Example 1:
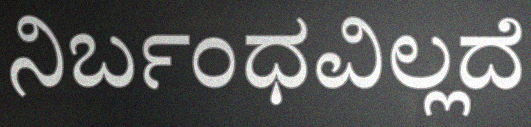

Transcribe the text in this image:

ನಿರ್ಬಂಧವಿಲ್ಲದೆ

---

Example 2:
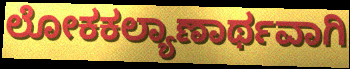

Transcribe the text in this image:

ಲೋಕಕಲ್ಯಾಣಾರ್ಥವಾಗಿ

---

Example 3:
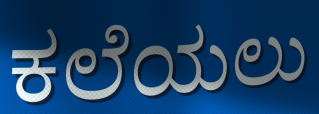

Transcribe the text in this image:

ಕಲೆಯಲು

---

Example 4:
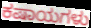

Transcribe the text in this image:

ಕಷಾಯಗಳು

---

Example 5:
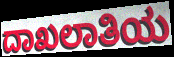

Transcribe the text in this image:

ದಾಖಲಾತಿಯ